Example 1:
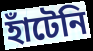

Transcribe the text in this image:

হাঁটেনি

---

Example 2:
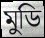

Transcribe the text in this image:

মুডি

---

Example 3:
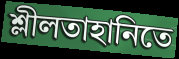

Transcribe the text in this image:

শ্লীলতাহানিতে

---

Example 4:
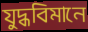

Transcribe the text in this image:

যুদ্ধবিমানে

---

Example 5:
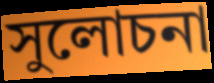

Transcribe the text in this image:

সুলোচনা